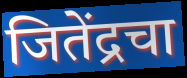
जितेंद्रचा